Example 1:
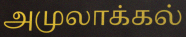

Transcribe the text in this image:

அமுலாக்கல்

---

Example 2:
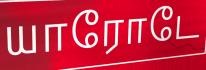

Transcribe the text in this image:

யாரோடே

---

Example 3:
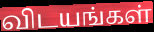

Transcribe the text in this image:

விடயங்கள்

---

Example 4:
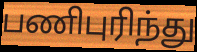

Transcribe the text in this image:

பணிபுரிந்து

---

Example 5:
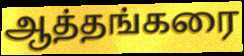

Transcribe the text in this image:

ஆத்தங்கரை